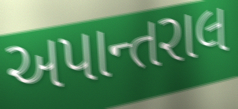
અપાન્તરાલ